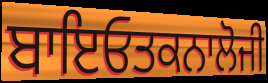
ਬਾਇਓਤਕਨਾਲੋਜੀ